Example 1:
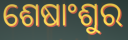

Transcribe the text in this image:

ଶେଷାଂଶୁର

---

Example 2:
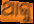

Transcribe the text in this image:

ଥାକୁ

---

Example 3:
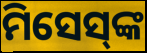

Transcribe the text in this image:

ମିସେସ୍‌ଙ୍କ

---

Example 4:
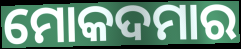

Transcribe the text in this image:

ମୋକଦମାର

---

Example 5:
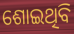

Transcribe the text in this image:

ଶୋଇଥିବି